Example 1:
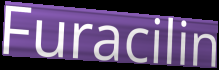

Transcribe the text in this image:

Furacilin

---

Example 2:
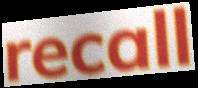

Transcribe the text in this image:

recall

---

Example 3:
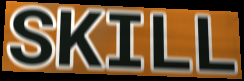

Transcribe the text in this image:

SKILL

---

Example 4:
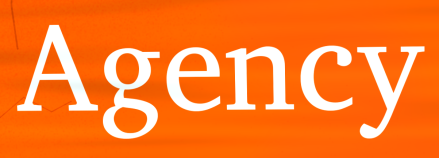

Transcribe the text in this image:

Agency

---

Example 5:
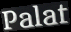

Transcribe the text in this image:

Palat